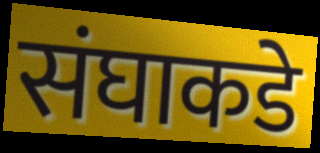
संघाकडे